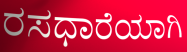
ರಸಧಾರೆಯಾಗಿ